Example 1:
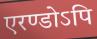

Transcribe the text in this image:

एरण्डोऽपि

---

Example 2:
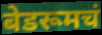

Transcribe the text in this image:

बेडरूमचं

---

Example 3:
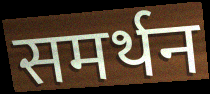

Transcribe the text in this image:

समर्थन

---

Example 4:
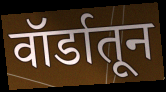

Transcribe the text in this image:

वॉर्डातून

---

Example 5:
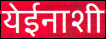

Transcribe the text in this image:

येईनाशी